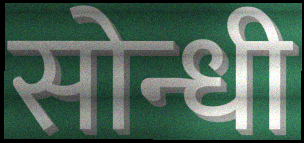
सोन्धी